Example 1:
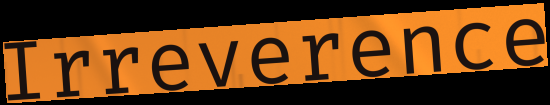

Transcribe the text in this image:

Irreverence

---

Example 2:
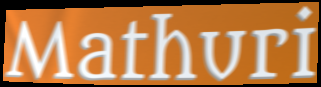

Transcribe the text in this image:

Mathuri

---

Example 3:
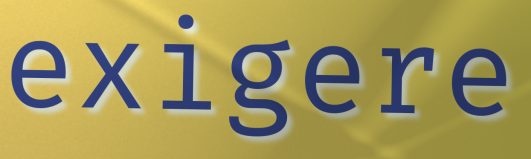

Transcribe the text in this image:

exigere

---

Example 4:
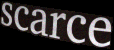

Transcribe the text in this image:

scarce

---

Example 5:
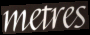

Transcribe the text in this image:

metres